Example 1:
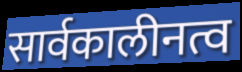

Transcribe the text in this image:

सार्वकालीनत्व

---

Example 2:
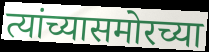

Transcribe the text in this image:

त्यांच्यासमोरच्या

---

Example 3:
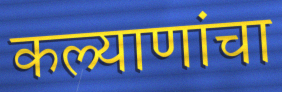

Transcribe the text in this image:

कल्याणांचा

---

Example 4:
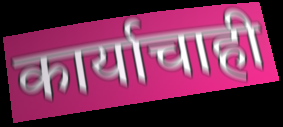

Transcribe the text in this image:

कार्याचाही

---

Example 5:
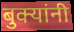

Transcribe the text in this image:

बुक्यांनी